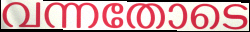
വന്നതോടെ